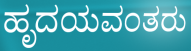
ಹೃದಯವಂತರು